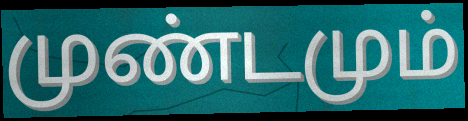
முண்டமும்